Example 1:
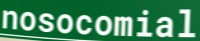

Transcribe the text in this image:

nosocomial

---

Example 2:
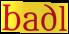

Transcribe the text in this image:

badl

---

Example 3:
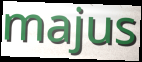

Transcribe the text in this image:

majus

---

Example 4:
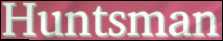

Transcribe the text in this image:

Huntsman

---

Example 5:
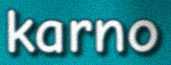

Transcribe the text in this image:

karno